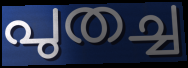
പുതച്ച